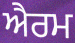
ਐਰਮ